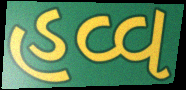
હવ્વ